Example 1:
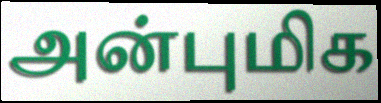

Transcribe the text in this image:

அன்புமிக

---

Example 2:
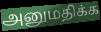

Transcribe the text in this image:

அனுமதிக்க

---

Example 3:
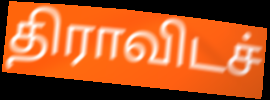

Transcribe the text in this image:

திராவிடச்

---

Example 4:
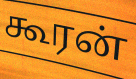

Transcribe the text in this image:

கூரன்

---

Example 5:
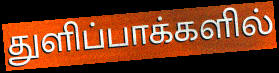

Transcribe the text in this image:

துளிப்பாக்களில்